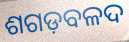
ଶଗଡ଼ବଳଦ